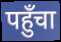
पहुँचा